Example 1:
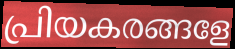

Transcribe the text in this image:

പ്രിയകരങ്ങളേ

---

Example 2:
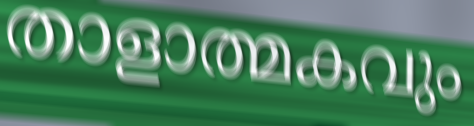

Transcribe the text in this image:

താളാത്മകവും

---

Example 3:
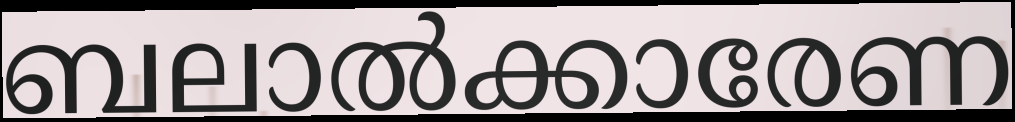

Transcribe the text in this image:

ബലാൽക്കാരേണ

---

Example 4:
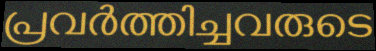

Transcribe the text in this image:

പ്രവർത്തിച്ചവരുടെ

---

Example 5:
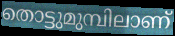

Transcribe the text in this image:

തൊട്ടുമുമ്പിലാണ്